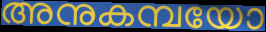
അനുകമ്പയോ